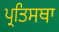
ਪ੍ਰਤਿਸਥਾ